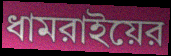
ধামরাইয়ের